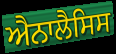
ਐਨਾਲੈਸਿਸ